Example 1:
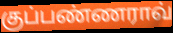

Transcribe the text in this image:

குப்பண்ணராவ்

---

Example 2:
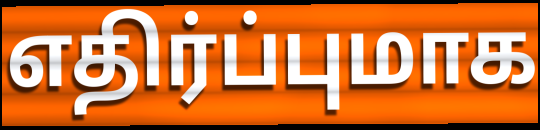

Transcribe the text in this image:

எதிர்ப்புமாக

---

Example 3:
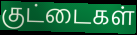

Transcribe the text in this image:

குட்டைகள்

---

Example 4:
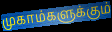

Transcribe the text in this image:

முகாம்களுக்கும்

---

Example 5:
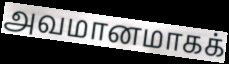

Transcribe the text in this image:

அவமானமாகக்